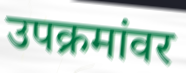
उपक्रमांवर